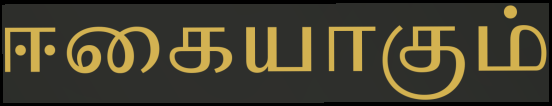
ஈகையாகும்